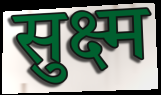
सुक्ष्म